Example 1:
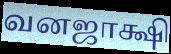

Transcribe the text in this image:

வனஜாக்ஷி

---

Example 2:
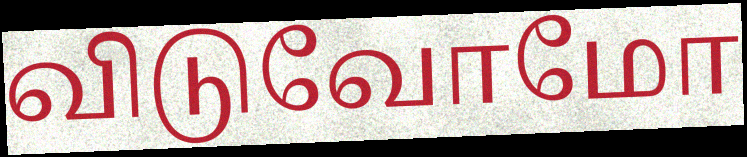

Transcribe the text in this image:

விடுவோமோ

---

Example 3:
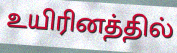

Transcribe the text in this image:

உயிரினத்தில்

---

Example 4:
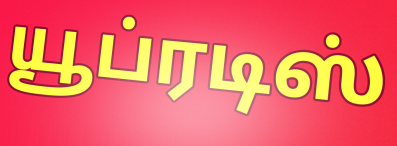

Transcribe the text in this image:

யூப்ரடிஸ்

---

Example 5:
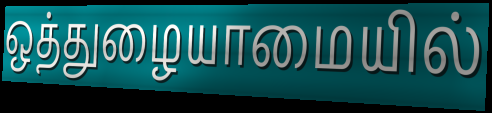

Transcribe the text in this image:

ஒத்துழையாமையில்